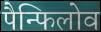
पैन्फिलोव